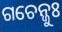
ଗଚେନ୍ଜୁଃ